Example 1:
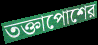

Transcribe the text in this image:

তক্তাপোশের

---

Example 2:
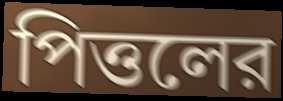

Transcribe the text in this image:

পিত্তলের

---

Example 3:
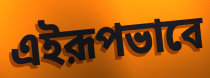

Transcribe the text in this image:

এইরূপভাবে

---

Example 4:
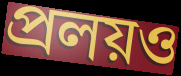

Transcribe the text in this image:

প্রলয়ও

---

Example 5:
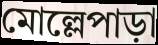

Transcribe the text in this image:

মোল্লেপাড়া